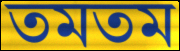
তমতম